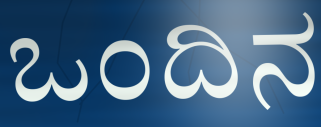
ಒಂದಿನ